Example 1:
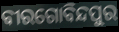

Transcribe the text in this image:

ବୀରଗୋବିନ୍ଦପୁର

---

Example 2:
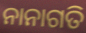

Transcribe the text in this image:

ନାନାଗତି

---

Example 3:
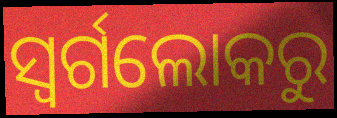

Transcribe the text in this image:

ସ୍ଵର୍ଗଲୋକରୁ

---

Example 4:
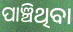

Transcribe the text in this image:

ପାଞ୍ଚିଥିବା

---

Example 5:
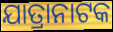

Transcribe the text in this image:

ଯାତ୍ରାନାଟକ